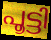
പൂട്ടി